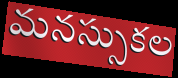
మనస్సుకల